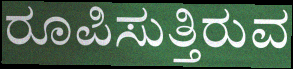
ರೂಪಿಸುತ್ತಿರುವ